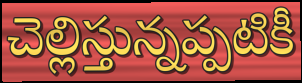
చెల్లిస్తున్నప్పటికీ